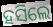
ହସିଲେ